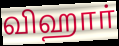
விஹார்